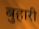
बुहारी